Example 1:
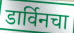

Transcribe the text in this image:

डार्विनचा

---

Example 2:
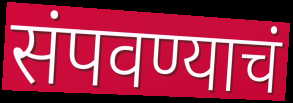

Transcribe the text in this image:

संपवण्याचं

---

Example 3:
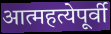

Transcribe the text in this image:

आत्महत्येपूर्वी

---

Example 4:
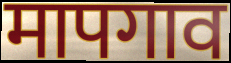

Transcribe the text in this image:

मापगाव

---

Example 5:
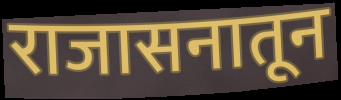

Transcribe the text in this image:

राजासनातून